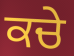
ਕਚੇ